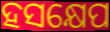
ହସକ୍ଷେପ